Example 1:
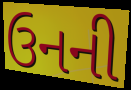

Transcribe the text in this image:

ઉનની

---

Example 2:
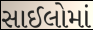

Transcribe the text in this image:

સાઈલોમાં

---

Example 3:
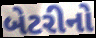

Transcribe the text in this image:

બેટરીનો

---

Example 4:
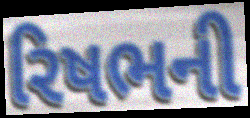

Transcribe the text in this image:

રિષભની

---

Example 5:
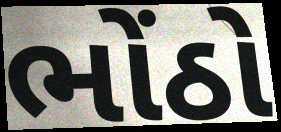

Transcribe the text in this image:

ભોંઠો